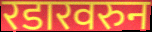
रडारवरुन